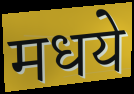
मधये